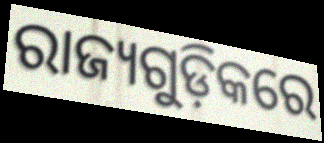
ରାଜ୍ୟଗୁଡ଼ିକରେ